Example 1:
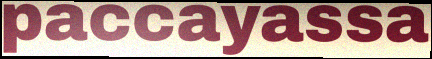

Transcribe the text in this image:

paccayassa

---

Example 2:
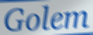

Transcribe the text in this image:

Golem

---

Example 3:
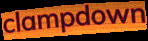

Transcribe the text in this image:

clampdown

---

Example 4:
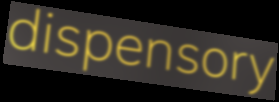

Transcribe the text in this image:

dispensory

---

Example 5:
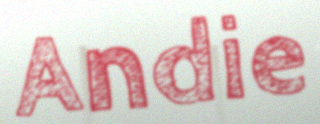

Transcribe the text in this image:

Andie